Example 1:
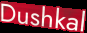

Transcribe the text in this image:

Dushkal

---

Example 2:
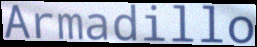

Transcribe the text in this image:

Armadillo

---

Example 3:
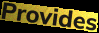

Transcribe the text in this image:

Provides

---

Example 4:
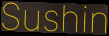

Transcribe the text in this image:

Sushin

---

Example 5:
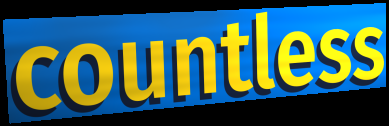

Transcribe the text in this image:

countless